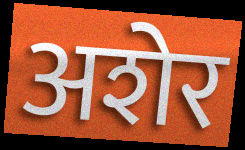
अशेर